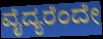
ವೈದ್ಯರೆಂದೇ